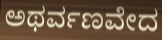
ಅಥರ್ವಣವೇದ